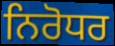
ਨਿਰੋਧਰ